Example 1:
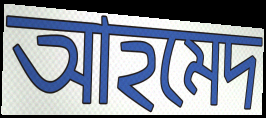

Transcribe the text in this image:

আহমেদ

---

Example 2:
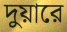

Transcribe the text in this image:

দুয়ারে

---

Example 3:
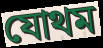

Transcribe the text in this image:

যোথম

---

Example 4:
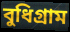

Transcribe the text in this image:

বুধিগ্রাম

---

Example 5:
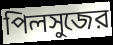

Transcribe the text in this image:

পিলসুজের